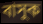
বাসুক